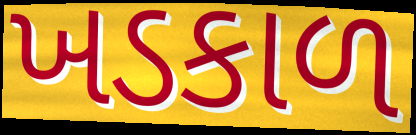
ખડકાળ